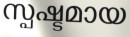
സ്പഷ്ടമായ